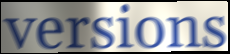
versions